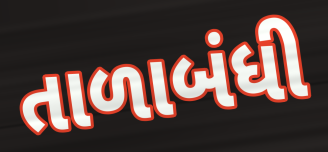
તાળાબંધી